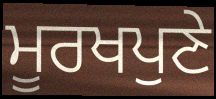
ਮੂਰਖਪੁਣੇ